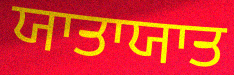
ਯਾਤਾਯਾਤ